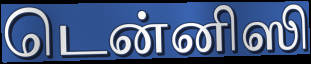
டென்னிஸி